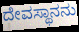
ದೇವಸ್ಥಾನನು